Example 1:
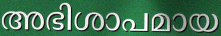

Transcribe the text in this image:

അഭിശാപമായ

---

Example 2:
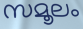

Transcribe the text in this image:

സമൂലം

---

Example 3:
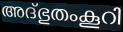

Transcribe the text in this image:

അദ്ഭുതംകൂറി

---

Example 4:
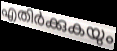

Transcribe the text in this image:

എതിർക്കുകയും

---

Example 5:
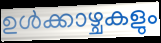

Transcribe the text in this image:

ഉൾക്കാഴ്ചകളും